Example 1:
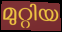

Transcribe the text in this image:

മുറ്റിയ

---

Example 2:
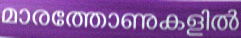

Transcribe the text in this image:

മാരത്തോണുകളിൽ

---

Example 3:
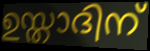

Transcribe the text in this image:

ഉസ്താദിന്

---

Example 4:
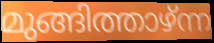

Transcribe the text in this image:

മുങ്ങിത്താഴ്ന്ന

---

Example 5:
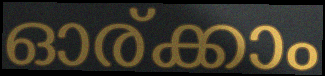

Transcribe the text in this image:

ഓര്ക്കാം